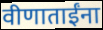
वीणाताईंना